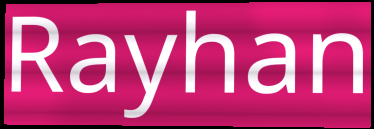
Rayhan